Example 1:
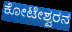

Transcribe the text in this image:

ಕೋಟೇಶ್ವರನ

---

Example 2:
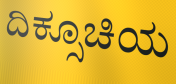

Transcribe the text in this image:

ದಿಕ್ಸೂಚಿಯ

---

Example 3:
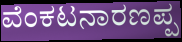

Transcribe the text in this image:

ವೆಂಕಟನಾರಣಪ್ಪ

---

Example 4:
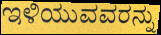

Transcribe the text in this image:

ಇಳಿಯುವವರನ್ನು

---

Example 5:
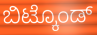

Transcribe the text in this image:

ಬಿಟ್ಕೊಂಡ್